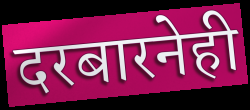
दरबारनेही